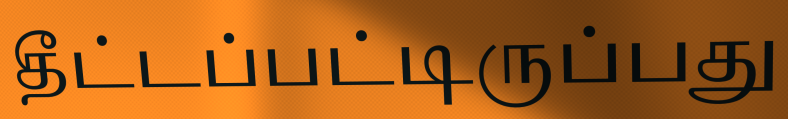
தீட்டப்பட்டிருப்பது